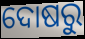
ଦୋଷରୁ